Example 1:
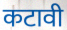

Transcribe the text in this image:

कटावी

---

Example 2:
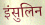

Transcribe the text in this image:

इंसुलिन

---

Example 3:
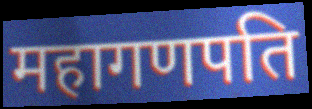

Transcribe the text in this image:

महागणपति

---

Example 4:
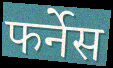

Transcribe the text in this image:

फर्नेस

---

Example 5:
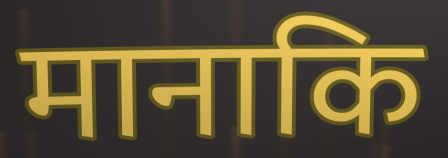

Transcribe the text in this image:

मानाकि